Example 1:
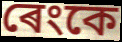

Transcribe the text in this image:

ৰেংকে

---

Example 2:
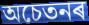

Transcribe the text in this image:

অচেতনৰ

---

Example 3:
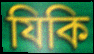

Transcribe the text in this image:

যিকি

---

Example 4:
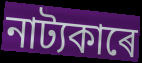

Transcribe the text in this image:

নাট্যকাৰে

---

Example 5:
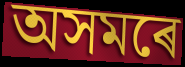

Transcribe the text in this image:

অসমৰে